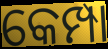
କେମ୍ପା